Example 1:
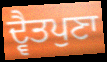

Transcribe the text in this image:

ਦ੍ਵੈਤਪੁਣਾ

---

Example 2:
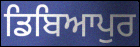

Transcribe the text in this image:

ਡਿਬਿਆਪੁਰ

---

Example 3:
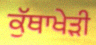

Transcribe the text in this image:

ਕੁੱਥਾਖੇੜੀ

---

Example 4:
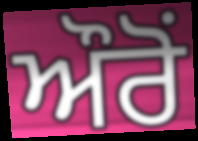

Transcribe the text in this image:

ਔਰੋਂ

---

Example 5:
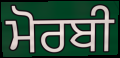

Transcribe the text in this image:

ਮੋਰਬੀ